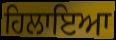
ਹਿਲਾਇਆ